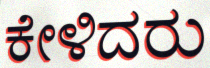
ಕೇಳಿದರು